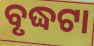
ବୃଦ୍ଧଟା